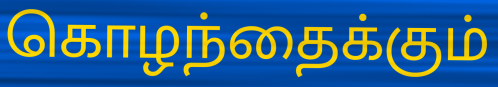
கொழந்தைக்கும்